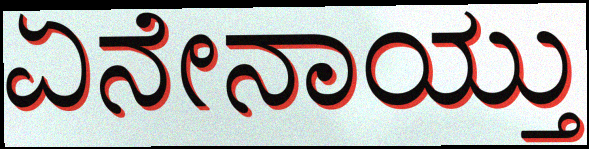
ಏನೇನಾಯ್ತು